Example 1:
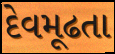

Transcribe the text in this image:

દેવમૂઢતા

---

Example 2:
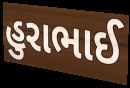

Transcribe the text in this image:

હુરાભાઈ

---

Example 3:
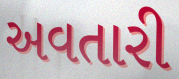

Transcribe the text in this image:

અવતારી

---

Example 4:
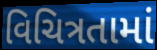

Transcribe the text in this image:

વિચિત્રતામાં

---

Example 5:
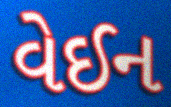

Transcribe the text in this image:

વેઈન